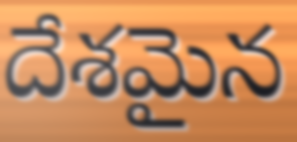
దేశమైన